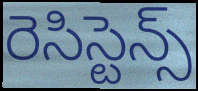
రెసిస్టెన్స్